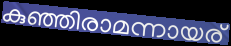
കുഞ്ഞിരാമന്നായര്